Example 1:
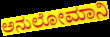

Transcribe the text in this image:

ಅನುಲೋಮಾನಿ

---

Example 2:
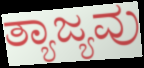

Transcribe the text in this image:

ತ್ಯಾಜ್ಯವು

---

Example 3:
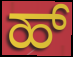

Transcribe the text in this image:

ಹ್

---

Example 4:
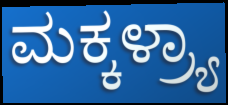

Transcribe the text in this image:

ಮಕ್ಕಳ್ರ್ಯಾ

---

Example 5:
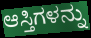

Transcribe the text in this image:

ಆಸ್ತಿಗಳನ್ನು